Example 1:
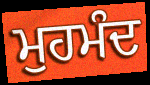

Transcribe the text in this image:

ਮੁਹਮੰਦ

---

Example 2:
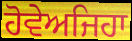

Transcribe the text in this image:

ਹੋਵੇਅਜਿਹਾ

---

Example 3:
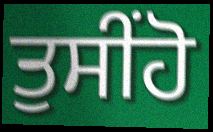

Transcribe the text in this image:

ਤੁਸੀਂਹੋ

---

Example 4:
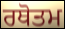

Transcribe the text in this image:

ਰਥੋਤਮ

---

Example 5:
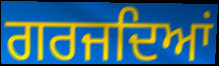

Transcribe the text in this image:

ਗਰਜਦਿਆਂ